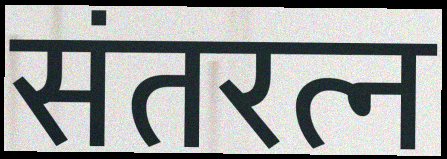
संतरत्न